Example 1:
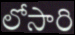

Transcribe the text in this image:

లోసారి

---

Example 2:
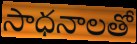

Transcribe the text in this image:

సాధనాలతో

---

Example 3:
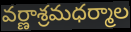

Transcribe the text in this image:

వర్ణాశ్రమధర్మాల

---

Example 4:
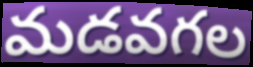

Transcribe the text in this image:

మడవగల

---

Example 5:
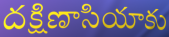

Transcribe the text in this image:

దక్షిణాసియాకు